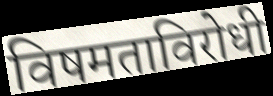
विषमताविरोधी